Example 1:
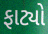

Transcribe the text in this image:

ફાટ્યો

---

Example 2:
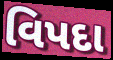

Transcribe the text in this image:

વિપદા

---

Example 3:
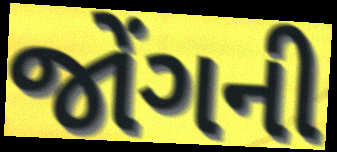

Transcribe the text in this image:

જોંગની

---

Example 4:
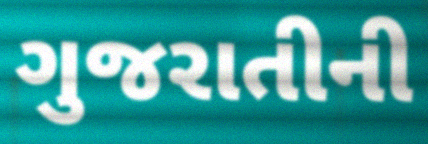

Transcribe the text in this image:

ગુજરાતીની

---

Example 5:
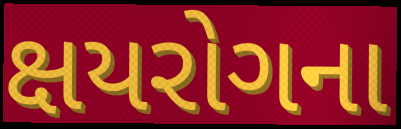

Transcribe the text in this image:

ક્ષયરોગના